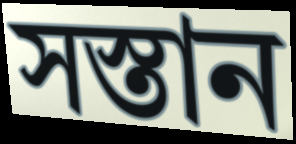
সস্তান